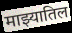
माझ्यातिल